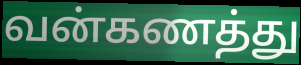
வன்கணத்து